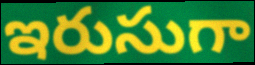
ఇరుసుగా